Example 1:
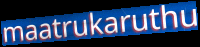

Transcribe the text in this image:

maatrukaruthu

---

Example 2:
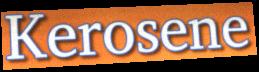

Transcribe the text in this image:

Kerosene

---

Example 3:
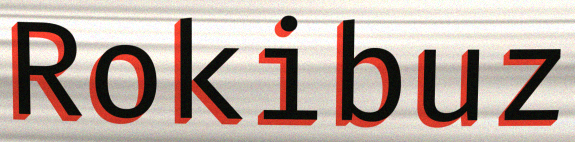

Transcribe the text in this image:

Rokibuz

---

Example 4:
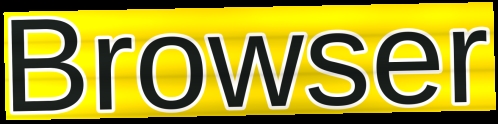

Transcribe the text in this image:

Browser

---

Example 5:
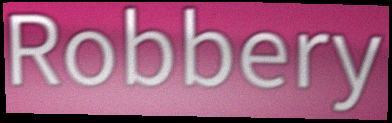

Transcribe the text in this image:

Robbery